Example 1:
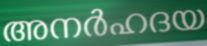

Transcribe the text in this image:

അനർഹദയ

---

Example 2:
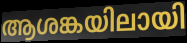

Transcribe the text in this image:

ആശങ്കയിലായി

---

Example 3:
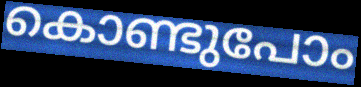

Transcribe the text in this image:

കൊണ്ടുപോം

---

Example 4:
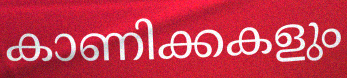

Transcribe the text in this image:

കാണിക്കകളും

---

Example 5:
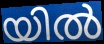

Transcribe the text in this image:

യിൽ